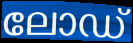
ലോഡ്